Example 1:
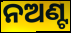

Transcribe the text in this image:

ନଅଣ୍ଟ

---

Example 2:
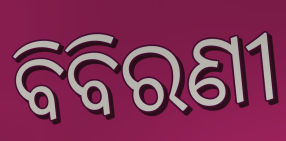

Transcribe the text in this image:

ବିବିରଣୀ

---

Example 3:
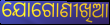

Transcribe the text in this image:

ଯୋଗୋଣୀଖିଆ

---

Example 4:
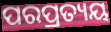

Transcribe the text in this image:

ପରପ୍ରତ୍ୟୟ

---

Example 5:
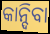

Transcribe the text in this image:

କାନ୍ଦିବା